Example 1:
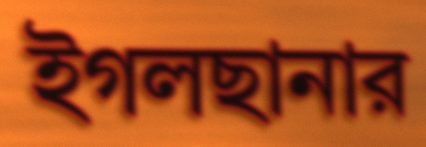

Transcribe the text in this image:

ইগলছানার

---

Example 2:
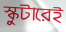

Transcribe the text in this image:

স্কুটারেই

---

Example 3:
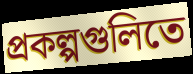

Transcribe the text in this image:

প্রকল্পগুলিতে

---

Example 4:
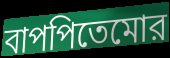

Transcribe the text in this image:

বাপপিতেমোর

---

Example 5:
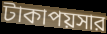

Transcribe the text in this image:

টাকাপয়সার